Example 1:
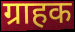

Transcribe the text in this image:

ग्राहक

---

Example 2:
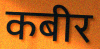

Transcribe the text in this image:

कबीर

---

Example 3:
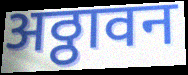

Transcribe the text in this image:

अठ्ठावन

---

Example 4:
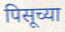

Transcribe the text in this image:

पिसूच्या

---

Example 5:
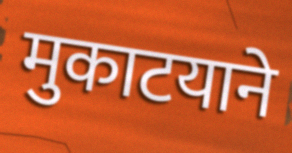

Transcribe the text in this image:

मुकाटयाने